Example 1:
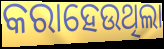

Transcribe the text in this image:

କରାହେଉଥିଲା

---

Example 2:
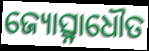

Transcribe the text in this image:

ଜ୍ୟୋତ୍ସ୍ନାଧୌତ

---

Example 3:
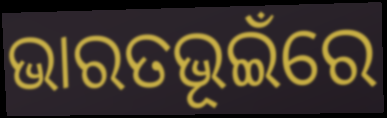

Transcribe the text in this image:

ଭାରତଭୂଇଁରେ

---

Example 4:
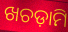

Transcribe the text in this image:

ଖଚଡ଼ାମି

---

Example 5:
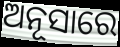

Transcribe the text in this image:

ଅନୂସାରେ